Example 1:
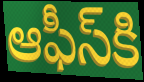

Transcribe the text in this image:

ఆఫీస్‌కి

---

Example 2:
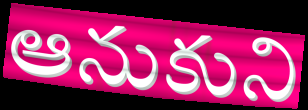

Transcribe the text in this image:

ఆనుకుని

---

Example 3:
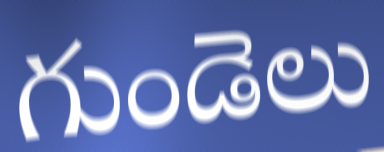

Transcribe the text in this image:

గుండెలు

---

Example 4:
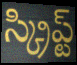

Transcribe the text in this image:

స్క్రిప్ట్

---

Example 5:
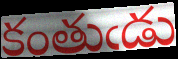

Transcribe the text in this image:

కంతుఁడు